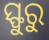
ସ୍ଫୁରୁ